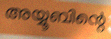
അയ്യൂബിന്റെ